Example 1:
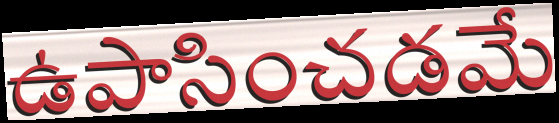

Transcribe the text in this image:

ఉపాసించడమే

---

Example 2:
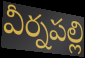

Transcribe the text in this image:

వీర్నపల్లి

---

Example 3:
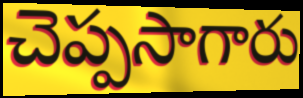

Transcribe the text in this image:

చెప్పసాగారు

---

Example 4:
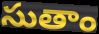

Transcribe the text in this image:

సుతాం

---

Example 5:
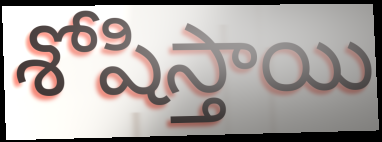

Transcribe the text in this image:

శోషిస్తాయి